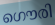
ഗൌരി